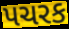
પચરક